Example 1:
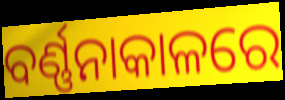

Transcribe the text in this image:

ବର୍ଣ୍ଣନାକାଳରେ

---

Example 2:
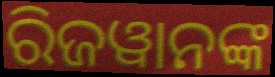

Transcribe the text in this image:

ରିଜୱାନଙ୍କ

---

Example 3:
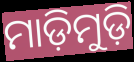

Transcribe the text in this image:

ମାଡ଼ିମୁଡ଼ି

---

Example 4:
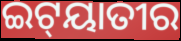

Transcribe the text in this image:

ଇଟ୍‍ୟାତୀର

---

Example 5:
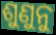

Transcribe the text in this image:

ଶୁଣୁନୁ